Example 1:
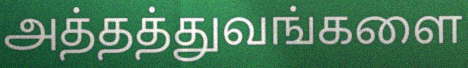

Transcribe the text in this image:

அத்தத்துவங்களை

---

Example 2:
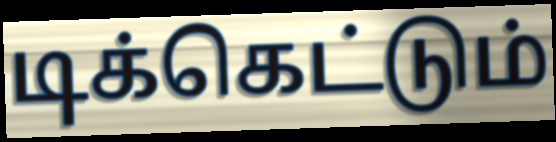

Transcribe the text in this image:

டிக்கெட்டும்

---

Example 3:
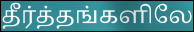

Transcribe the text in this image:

தீர்த்தங்களிலே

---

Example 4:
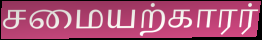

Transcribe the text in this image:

சமையற்காரர்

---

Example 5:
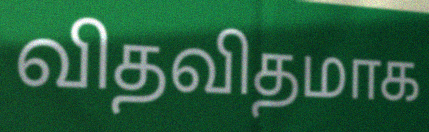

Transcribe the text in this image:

விதவிதமாக